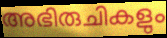
അഭിരുചികളും